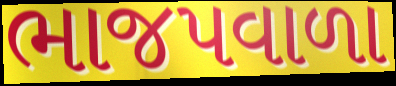
ભાજપવાળા